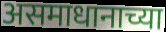
असमाधानाच्या